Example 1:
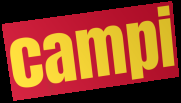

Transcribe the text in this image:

campi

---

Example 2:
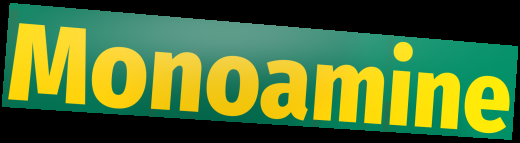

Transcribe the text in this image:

Monoamine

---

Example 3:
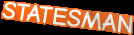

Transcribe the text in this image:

STATESMAN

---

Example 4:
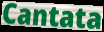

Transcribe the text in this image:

Cantata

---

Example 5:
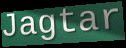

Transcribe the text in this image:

Jagtar